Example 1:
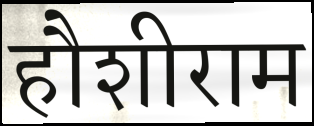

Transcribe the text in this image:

हौशीराम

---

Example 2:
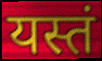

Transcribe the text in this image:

यस्तं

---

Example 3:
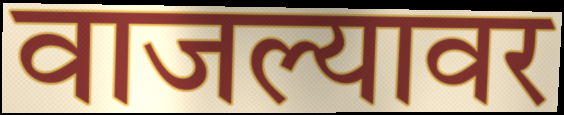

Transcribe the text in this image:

वाजल्यावर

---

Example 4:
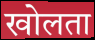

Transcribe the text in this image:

खोलता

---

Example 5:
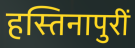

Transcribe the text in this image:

हस्तिनापुरीं